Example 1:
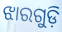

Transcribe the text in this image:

ଝାରଗୁଡ଼ି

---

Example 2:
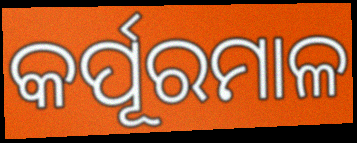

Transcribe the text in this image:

କର୍ପୂରମାଳ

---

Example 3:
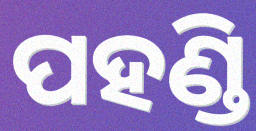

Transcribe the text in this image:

ପହଣ୍ଡି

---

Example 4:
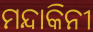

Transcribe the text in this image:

ମନ୍ଦାକିନୀ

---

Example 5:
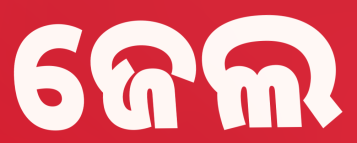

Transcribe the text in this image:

ଜେଲ